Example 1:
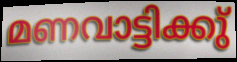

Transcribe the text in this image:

മണവാട്ടിക്കു്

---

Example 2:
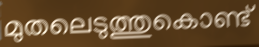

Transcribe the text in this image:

മുതലെടുത്തുകൊണ്ട്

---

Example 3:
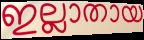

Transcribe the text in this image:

ഇല്ലാതായ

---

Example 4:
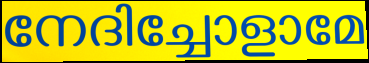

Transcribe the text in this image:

നേദിച്ചോളാമേ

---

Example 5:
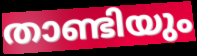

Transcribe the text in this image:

താണ്ടിയും